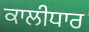
ਕਾਲੀਧਾਰ